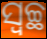
ସ୍ବଚ୍ଛ